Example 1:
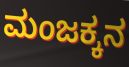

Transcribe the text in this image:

ಮಂಜಕ್ಕನ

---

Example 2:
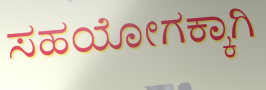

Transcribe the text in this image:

ಸಹಯೋಗಕ್ಕಾಗಿ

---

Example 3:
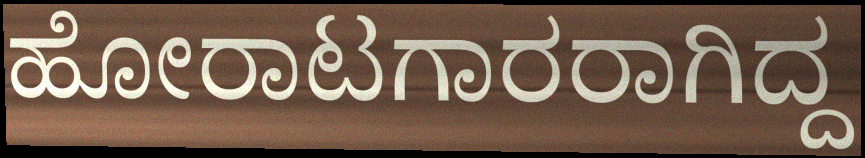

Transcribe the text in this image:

ಹೋರಾಟಗಾರರಾಗಿದ್ದ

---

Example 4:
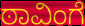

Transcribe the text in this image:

ಠಾವಿಂಗೆ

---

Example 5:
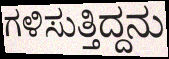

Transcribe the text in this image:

ಗಳಿಸುತ್ತಿದ್ದನು